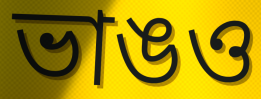
ভাঙও